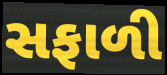
સફાળી